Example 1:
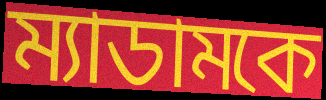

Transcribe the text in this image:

ম্যাডামকে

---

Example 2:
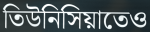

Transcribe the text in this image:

তিউনিসিয়াতেও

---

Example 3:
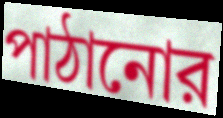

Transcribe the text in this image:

পাঠানোর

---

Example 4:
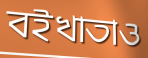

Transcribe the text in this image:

বইখাতাও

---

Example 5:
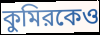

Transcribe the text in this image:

কুমিরকেও